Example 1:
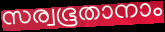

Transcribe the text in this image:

സര്വഭൂതാനാം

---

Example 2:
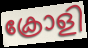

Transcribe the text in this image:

ക്രോളി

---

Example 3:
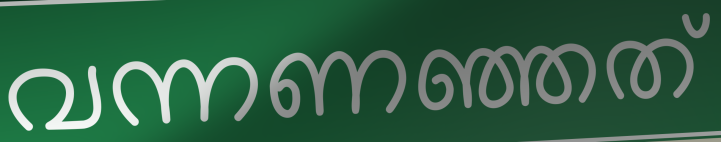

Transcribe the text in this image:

വന്നണഞ്ഞത്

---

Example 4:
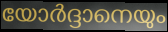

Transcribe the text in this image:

യോർദ്ദാനെയും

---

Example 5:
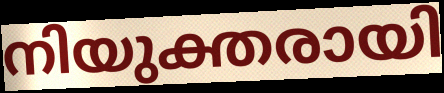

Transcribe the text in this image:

നിയുക്തരായി